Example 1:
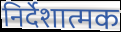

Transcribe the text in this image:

निर्देशात्मक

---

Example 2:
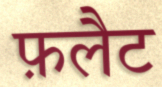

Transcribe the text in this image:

फ़लैट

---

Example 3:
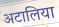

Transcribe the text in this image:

अटालिया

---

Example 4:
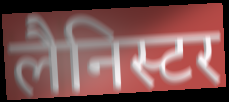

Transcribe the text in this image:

लैनिस्टर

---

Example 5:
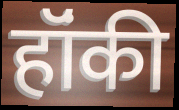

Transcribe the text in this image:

हॉंकी